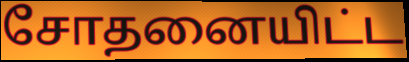
சோதனையிட்ட